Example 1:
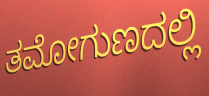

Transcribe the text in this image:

ತಮೋಗುಣದಲ್ಲಿ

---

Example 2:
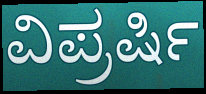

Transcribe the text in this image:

ವಿಪ್ರರ್ಷಿ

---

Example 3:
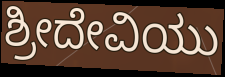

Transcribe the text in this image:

ಶ್ರೀದೇವಿಯು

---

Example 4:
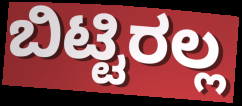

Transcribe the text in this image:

ಬಿಟ್ಟಿರಲ್ಲ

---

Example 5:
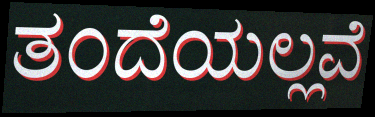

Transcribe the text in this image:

ತಂದೆಯಲ್ಲವೆ